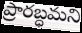
ప్రారబ్ధమని